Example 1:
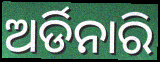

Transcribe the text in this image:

ଅର୍ଡିନାରି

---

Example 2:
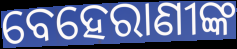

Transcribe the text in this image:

ବେହେରାଣୀଙ୍କ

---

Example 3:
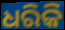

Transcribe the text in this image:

ଧରିକି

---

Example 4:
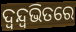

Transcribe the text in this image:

ଦ୍ୱନ୍ଦ୍ୱଭିତରେ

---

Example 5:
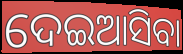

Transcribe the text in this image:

ଦେଇଆସିବା